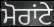
ਮੋਰਾਂਟੇ